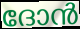
ദോൻ